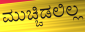
ಮುಚ್ಚಿಡಲಿಲ್ಲ